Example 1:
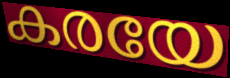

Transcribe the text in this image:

കരയേ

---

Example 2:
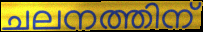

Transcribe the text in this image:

ചലനത്തിന്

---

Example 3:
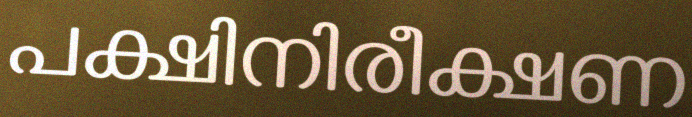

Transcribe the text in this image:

പക്ഷിനിരീക്ഷണ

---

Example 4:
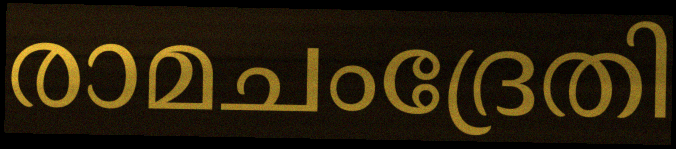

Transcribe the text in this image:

രാമചംദ്രേതി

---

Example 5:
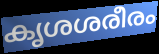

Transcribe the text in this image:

കൃശശരീരം